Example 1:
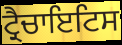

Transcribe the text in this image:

ਟ੍ਰੈਚਾਇਟਿਸ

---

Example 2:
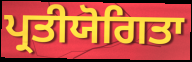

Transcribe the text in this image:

ਪ੍ਰਤੀਯੋਗਿਤਾ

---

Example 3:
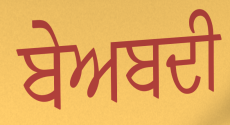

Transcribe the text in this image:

ਬੇਅਬਦੀ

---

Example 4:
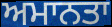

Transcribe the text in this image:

ਅਮਾਨਤਾ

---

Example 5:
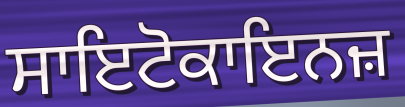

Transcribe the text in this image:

ਸਾਇਟੋਕਾਇਨਜ਼